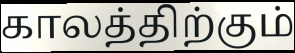
காலத்திற்கும்